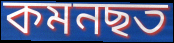
কমনছত